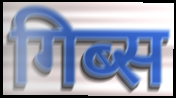
गिब्स